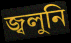
জ্বলুনি